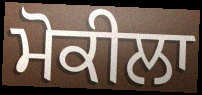
ਮੋਕੀਲਾ